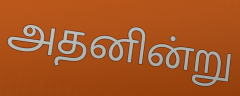
அதனின்று